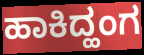
ಹಾಕಿದ್ಹಂಗ